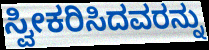
ಸ್ವೀಕರಿಸಿದವರನ್ನು